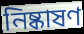
নিষ্কাষণ